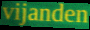
vijanden